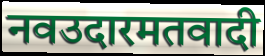
नवउदारमतवादी